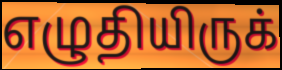
எழுதியிருக்